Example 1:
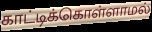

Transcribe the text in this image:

காட்டிக்கொள்ளாமல்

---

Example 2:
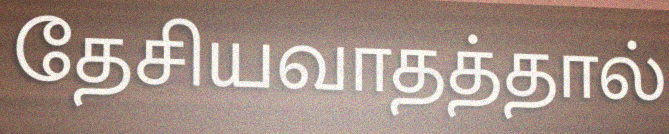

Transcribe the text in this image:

தேசியவாதத்தால்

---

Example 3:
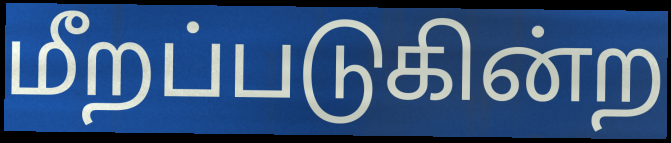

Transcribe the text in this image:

மீறப்படுகின்ற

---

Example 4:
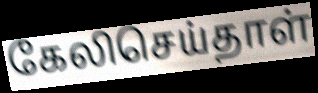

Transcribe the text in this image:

கேலிசெய்தாள்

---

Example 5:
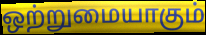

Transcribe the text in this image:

ஒற்றுமையாகும்